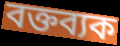
বক্তব্যক